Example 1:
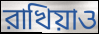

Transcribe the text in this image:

রাখিয়াও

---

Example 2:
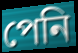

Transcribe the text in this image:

পেনি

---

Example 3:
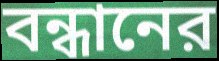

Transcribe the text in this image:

বন্ধানের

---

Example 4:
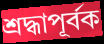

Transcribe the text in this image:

শ্রদ্ধাপূর্বক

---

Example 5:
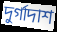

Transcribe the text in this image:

দুর্গাদাশ